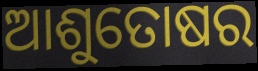
ଆଶୁତୋଷର